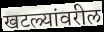
खटल्यांवरील